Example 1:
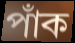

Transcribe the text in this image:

পাঁক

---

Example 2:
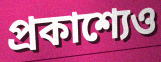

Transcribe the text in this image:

প্রকাশ্যেও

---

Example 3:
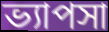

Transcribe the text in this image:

ভ্যাপসা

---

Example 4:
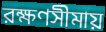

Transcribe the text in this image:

রক্ষণসীমায়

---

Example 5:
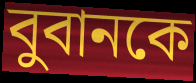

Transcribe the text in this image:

বুবানকে